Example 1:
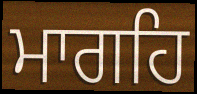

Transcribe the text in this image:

ਮਾਗਹਿ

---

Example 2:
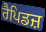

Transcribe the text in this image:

ਰੈਪਿਡਜ਼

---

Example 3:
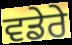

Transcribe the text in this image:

ਵਡੇਰੇ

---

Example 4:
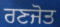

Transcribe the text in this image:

ਰਣਜੋਤ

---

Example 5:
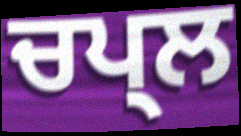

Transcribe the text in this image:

ਚਪ੍ਲ